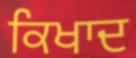
ਕਿਖਾਦ